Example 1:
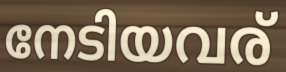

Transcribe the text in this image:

നേടിയവര്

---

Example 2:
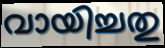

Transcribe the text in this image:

വായിച്ചതു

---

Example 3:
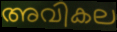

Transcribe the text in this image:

അവികല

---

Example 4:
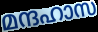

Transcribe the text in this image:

മന്ദഹാസ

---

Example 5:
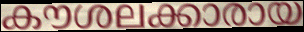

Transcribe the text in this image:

കൗശലക്കാരായ